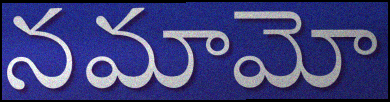
నమామో